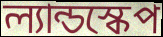
ল্যান্ডস্কেপ